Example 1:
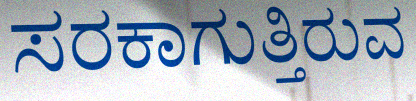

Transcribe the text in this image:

ಸರಕಾಗುತ್ತಿರುವ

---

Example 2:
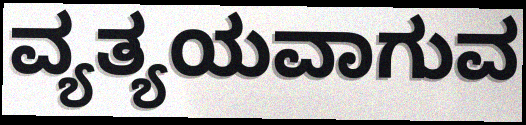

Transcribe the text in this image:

ವ್ಯತ್ಯಯವಾಗುವ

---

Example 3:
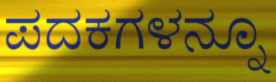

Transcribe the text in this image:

ಪದಕಗಳನ್ನೂ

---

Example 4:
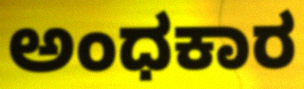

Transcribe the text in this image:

ಅಂಧಕಾರ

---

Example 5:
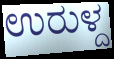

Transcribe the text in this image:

ಉರುಳ್ದ